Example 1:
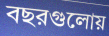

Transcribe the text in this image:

বছরগুলোয়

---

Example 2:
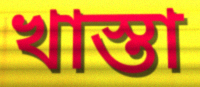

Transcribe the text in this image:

খাস্তা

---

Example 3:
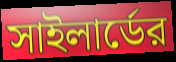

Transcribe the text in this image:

সাইলার্ডের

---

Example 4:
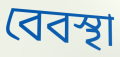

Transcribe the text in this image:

বেবস্থা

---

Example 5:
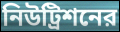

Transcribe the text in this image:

নিউট্রিশনের